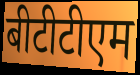
बीटीटीएम